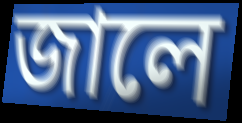
জালে